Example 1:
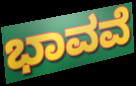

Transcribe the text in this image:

ಭಾವವೆ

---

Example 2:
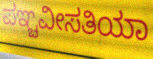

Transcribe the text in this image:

ಪಞ್ಚವೀಸತಿಯಾ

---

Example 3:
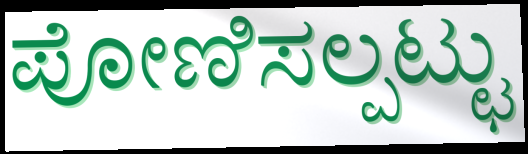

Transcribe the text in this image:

ಪೋಣಿಸಲ್ಪಟ್ಟು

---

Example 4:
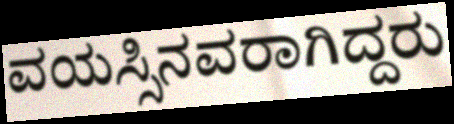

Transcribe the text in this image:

ವಯಸ್ಸಿನವರಾಗಿದ್ದರು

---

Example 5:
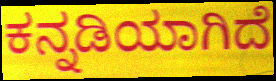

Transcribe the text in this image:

ಕನ್ನಡಿಯಾಗಿದೆ